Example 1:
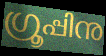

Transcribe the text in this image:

ഗ്രൂപ്പിനു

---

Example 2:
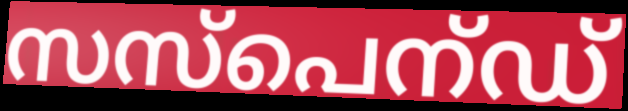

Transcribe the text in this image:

സസ്പെന്ഡ്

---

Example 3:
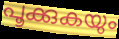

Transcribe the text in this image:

പൂക്കുകയും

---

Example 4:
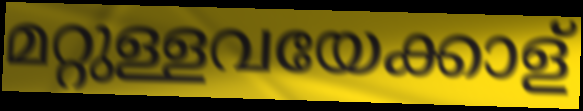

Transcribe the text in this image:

മറ്റുള്ളവയേക്കാള്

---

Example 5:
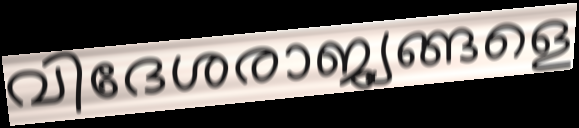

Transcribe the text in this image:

വിദേശരാജ്യങ്ങളെ